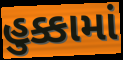
હુક્કામાં